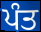
ਪੰਤ